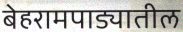
बेहरामपाड्यातील